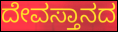
ದೇವಸ್ತಾನದ